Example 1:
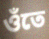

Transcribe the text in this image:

ওঁতে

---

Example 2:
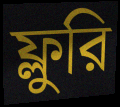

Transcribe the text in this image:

ফ্লুরি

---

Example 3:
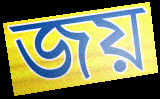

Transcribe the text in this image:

জয়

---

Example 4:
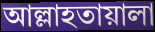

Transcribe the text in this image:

আল্লাহতায়ালা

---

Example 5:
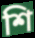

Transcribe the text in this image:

শি